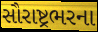
સૌરાષ્ટ્રભરના